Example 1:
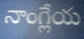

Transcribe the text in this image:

నాంగ్లేయ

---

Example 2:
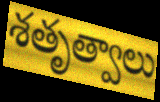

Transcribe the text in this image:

శతృత్వాలు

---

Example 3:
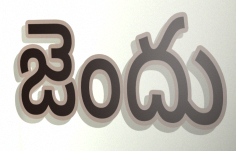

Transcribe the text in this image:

జెందు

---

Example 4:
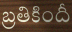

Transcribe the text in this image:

బ్రతికిందీ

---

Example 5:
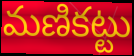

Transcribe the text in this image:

మణికట్టు